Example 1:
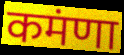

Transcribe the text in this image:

कमंणा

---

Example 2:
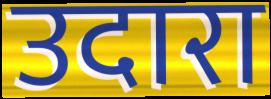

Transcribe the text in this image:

उदारा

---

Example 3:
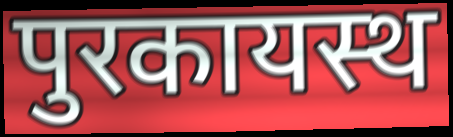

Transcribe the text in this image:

पुरकायस्थ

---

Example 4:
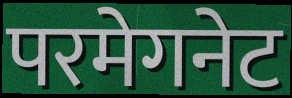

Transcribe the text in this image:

परमेगनेट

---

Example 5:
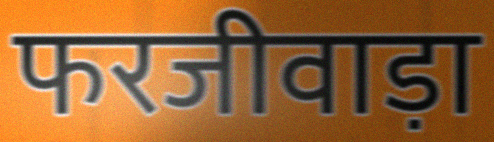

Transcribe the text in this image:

फरजीवाड़ा